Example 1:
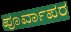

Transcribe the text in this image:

ಪೂರ್ವಾಪರ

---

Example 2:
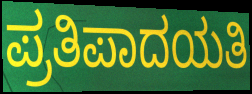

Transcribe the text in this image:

ಪ್ರತಿಪಾದಯತಿ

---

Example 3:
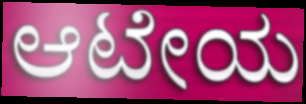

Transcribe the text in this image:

ಆಟೇಯ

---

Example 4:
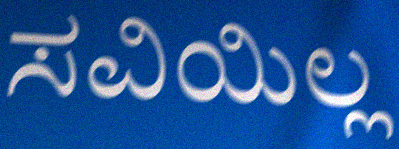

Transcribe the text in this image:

ಸವಿಯಿಲ್ಲ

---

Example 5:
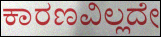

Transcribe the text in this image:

ಕಾರಣವಿಲ್ಲದೇ